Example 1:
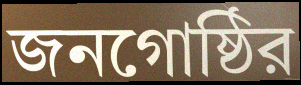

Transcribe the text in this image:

জনগোষ্ঠির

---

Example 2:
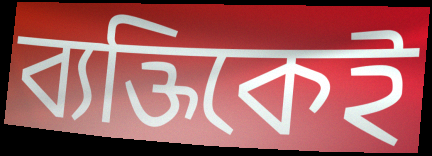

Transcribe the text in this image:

ব্যক্তিকেই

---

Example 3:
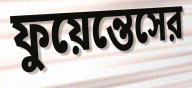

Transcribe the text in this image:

ফুয়েন্তেসের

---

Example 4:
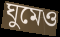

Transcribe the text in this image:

ঘুমেও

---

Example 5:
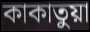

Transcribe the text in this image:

কাকাতুয়া